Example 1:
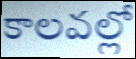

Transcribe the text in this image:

కాలవల్లో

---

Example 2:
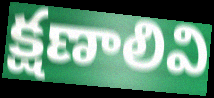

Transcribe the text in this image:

క్షణాలివి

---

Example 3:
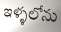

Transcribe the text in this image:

ఇళ్ళలోను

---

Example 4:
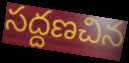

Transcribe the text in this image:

సద్దణచిన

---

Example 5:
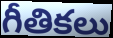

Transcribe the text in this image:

గీతికలు